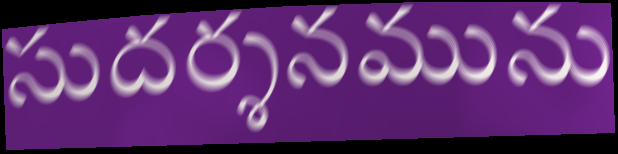
సుదర్శనమును